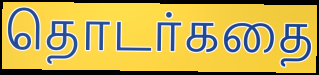
தொடர்கதை